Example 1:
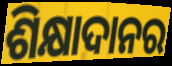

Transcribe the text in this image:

ଶିକ୍ଷାଦାନର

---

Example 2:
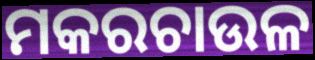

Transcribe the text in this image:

ମକରଚାଉଳ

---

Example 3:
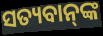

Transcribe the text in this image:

ସତ୍ୟବାନ୍‌ଙ୍କ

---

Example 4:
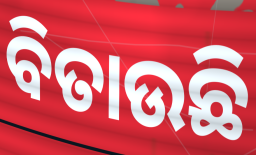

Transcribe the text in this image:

ବିତାଉଛି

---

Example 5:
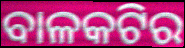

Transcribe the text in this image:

ବାଳକଟିର